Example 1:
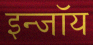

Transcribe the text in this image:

इन्जॉय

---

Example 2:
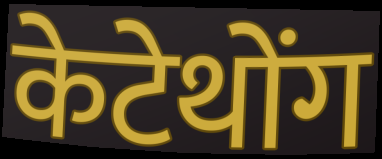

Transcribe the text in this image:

केटेथोंग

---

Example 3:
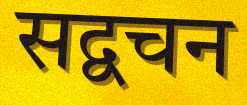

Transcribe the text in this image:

सद्वचन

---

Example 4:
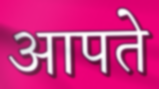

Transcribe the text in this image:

आपते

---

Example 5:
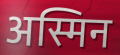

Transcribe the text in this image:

अस्मिन